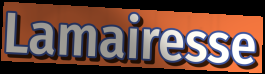
Lamairesse